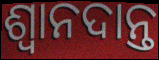
ଶ୍ଵାନଦାନ୍ତ